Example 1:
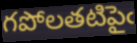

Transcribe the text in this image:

గపోలతటిపైఁ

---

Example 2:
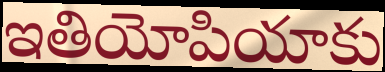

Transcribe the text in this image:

ఇతియోపియాకు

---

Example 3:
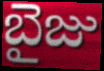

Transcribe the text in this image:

బైజు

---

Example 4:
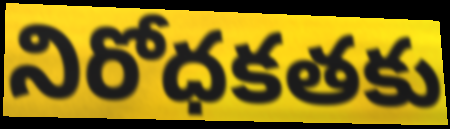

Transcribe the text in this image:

నిరోధకతకు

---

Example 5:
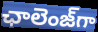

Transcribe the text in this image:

ఛాలెంజ్‌గా